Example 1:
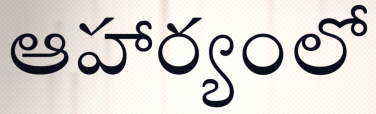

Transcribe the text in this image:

ఆహార్యంలో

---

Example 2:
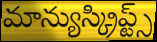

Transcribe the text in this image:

మాన్యుస్క్రిప్ట్స్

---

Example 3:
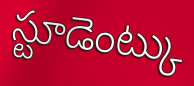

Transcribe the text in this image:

స్టూడెంట్కు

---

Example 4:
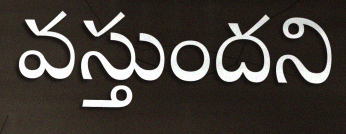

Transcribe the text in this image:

వస్తుందని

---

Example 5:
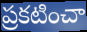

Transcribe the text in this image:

ప్రకటించా